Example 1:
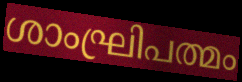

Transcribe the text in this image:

ശാംഘ്രിപത്മം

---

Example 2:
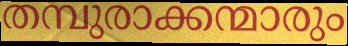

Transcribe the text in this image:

തമ്പുരാക്കന്മാരും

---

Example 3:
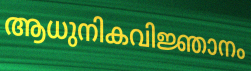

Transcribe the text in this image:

ആധുനികവിജ്ഞാനം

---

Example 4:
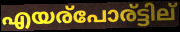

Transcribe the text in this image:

എയര്പോര്ട്ടില്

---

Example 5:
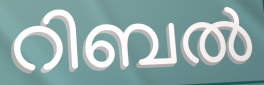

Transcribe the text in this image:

റിബൽ